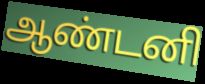
ஆண்டனி